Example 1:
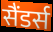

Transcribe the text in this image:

सैंडर्स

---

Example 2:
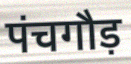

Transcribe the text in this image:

पंचगौड़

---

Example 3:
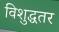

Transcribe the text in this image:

विशुद्धतर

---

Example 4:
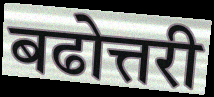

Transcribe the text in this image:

बढोत्तरी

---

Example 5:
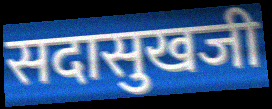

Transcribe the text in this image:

सदासुखजी